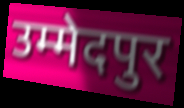
उम्मेदपुर